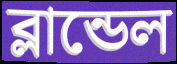
ব্লান্ডেল